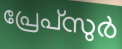
പ്രേപ്സുർ